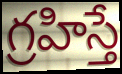
గ్రహిస్తే